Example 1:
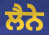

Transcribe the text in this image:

ਲੈਨੇ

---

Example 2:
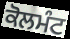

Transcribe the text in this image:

ਕੋਲਮੰਟ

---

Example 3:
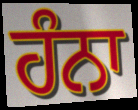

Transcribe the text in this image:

ਹੰਨਾ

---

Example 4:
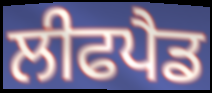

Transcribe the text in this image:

ਲੀਫਪੈਡ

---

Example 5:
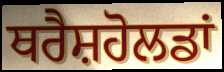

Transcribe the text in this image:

ਥਰੈਸ਼ਹੋਲਡਾਂ